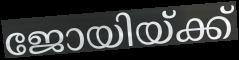
ജോയിയ്ക്ക്